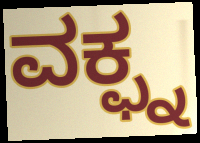
ವಕ್ಫ್ನ